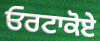
ਓਰਟਾਕੋਏ